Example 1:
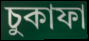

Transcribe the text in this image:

চুকাফা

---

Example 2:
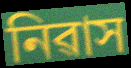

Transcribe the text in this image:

নিৱাস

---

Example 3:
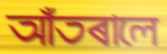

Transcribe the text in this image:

আঁতৰালে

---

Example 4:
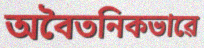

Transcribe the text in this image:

অবৈতনিকভাৱে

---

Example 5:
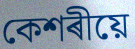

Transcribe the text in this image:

কেশৰীয়ে